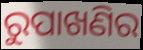
ରୁପାଖଣିର